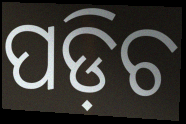
ପଡ଼ିଚ